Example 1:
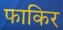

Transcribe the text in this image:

फाकिर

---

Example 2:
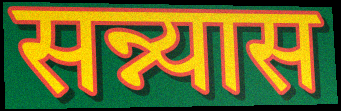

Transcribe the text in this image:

सन्न्यास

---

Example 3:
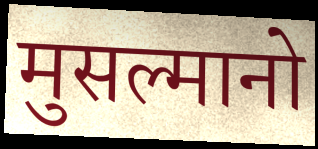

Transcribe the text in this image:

मुसल्मानो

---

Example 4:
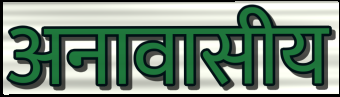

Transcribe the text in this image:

अनावासीय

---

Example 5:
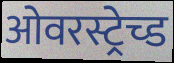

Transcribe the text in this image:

ओवरस्ट्रेच्ड